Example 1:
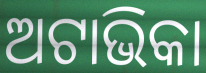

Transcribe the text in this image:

ଅଟାଭିକା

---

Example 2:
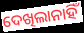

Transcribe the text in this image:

ଦେଖିଲାନାହିଁ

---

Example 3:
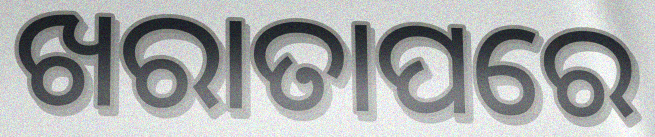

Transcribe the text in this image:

ଖରାତାପରେ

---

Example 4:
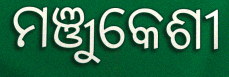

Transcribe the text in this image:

ମଞ୍ଜୁକେଶୀ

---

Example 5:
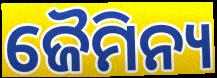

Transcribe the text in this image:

ଜୈମିନ୍ୟ